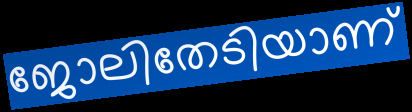
ജോലിതേടിയാണ്